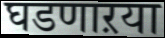
घडणाऱया